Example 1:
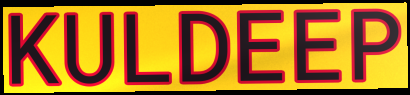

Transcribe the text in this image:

KULDEEP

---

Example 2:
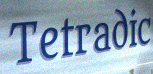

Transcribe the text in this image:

Tetradic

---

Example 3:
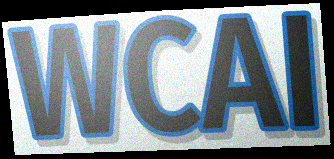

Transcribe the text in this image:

WCAI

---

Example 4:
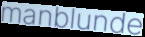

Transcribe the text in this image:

manblunde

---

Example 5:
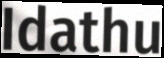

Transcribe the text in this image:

Idathu